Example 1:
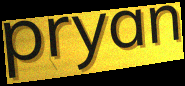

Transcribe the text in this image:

pryan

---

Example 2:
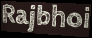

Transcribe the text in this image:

Rajbhoi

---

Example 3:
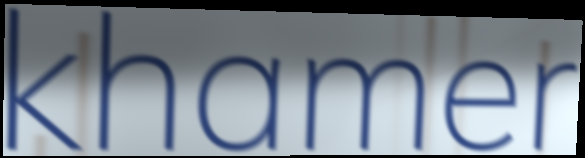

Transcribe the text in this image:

khamer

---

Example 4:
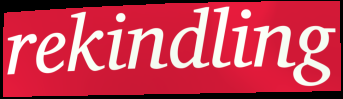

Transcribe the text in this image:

rekindling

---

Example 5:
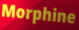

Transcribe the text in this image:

Morphine